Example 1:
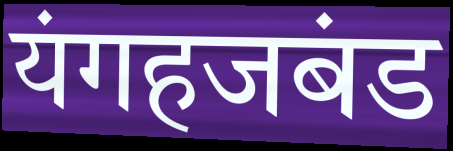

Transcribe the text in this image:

यंगहजबंड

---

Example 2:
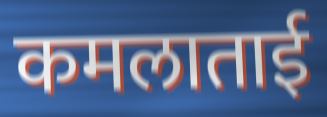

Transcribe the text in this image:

कमलाताई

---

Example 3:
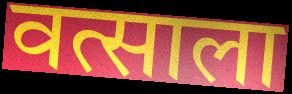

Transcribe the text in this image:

वत्साला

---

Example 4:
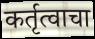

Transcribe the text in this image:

कर्तृत्वाचा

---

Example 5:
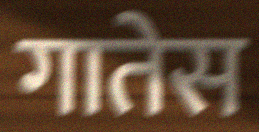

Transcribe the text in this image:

गातेस